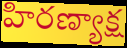
హిరణ్యాక్ష